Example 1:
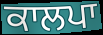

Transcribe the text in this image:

ਕਾਲਪਾ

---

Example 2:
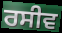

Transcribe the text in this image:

ਰਸੀਵ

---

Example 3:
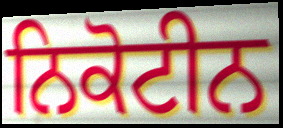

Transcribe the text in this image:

ਨਿਕੋਟੀਨ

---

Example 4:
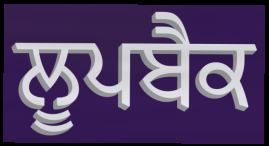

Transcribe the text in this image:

ਲੂਪਬੈਕ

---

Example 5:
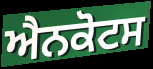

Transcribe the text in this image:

ਐਨਕੋਟਸ